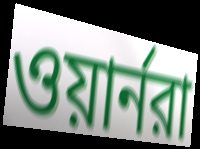
ওয়ার্নরা